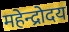
महेन्द्रोदय